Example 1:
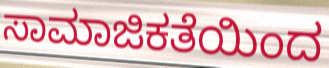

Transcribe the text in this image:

ಸಾಮಾಜಿಕತೆಯಿಂದ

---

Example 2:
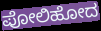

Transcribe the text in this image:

ಪೋಲಿಹೋದ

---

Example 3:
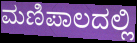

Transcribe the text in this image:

ಮಣಿಪಾಲದಲ್ಲಿ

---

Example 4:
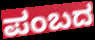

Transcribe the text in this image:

ಪಂಬದ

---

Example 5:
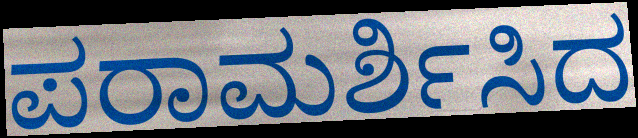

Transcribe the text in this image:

ಪರಾಮರ್ಶಿಸಿದ